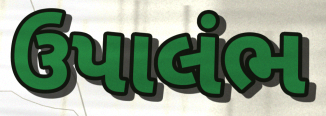
ઉપાલંભ